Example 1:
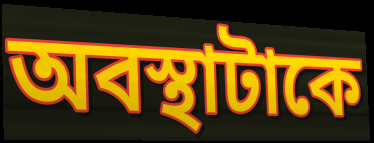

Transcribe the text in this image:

অবস্থাটাকে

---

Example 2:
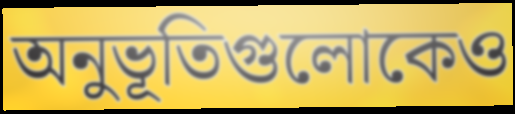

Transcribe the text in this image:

অনুভূতিগুলোকেও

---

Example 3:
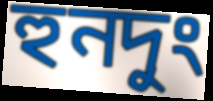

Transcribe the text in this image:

হুনদুং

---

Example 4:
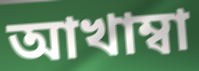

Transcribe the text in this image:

আখাম্বা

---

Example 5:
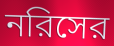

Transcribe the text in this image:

নরিসের